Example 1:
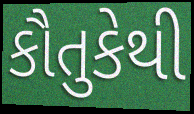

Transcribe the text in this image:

કૌતુકેથી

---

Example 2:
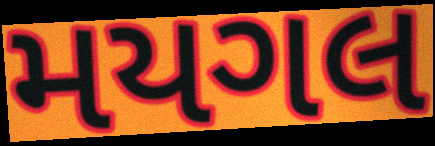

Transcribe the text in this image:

મયગલ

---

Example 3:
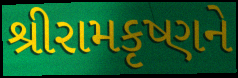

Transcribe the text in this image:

શ્રીરામકૃષ્ણને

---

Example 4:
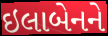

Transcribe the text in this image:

ઇલાબેનને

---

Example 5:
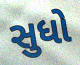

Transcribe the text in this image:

સુધો